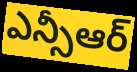
ఎన్సీఆర్